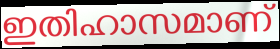
ഇതിഹാസമാണ്